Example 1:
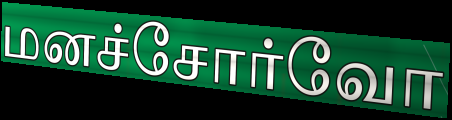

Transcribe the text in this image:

மனச்சோர்வோ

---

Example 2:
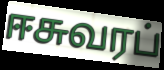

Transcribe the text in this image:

ஈசுவரப்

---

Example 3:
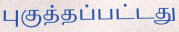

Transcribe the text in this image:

புகுத்தப்பட்டது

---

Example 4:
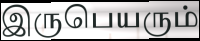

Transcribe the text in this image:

இருபெயரும்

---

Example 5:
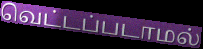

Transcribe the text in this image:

வெட்டப்படாமல்